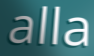
alla